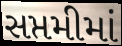
સપ્તમીમાં